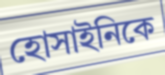
হোসাইনিকে